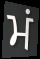
ਮਂ